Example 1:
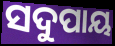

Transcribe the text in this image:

ସଦୁପାୟ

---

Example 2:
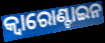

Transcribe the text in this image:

କ୍ୱାରୋଣ୍ଟାଇନ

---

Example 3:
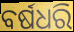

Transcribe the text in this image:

ବର୍ଷଧରି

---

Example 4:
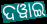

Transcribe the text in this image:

ଦୱାଇ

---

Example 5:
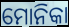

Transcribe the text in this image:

ମୋନିକା